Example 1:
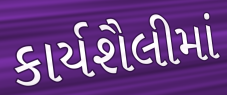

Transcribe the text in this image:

કાર્યશૈલીમાં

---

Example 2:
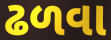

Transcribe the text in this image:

ઢળવા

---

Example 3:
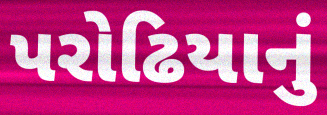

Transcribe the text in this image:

પરોઢિયાનું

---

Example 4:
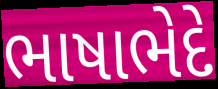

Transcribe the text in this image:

ભાષાભેદે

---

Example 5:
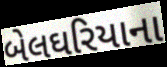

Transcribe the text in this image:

બેલઘરિયાના